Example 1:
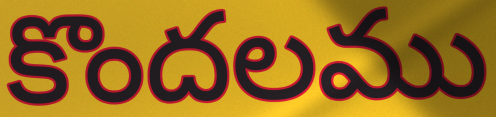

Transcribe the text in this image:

కొందలము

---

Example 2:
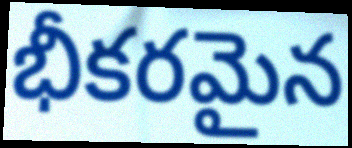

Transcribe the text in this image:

భీకరమైన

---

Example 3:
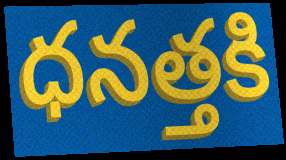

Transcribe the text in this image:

ధనత్తకి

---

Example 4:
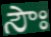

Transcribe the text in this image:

సౌః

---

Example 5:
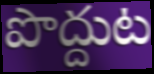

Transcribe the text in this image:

పొద్దుట